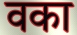
वका